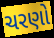
ચરણો